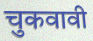
चुकवावी